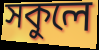
সকুলে